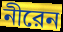
নীরেন